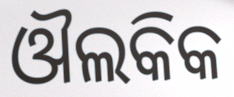
ଔଲକିକ